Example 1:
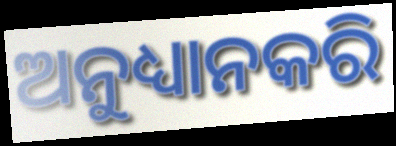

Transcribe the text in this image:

ଅନୁଧ୍ୟାନକରି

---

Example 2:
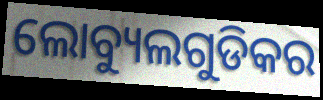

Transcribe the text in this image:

ଲୋବ୍ୟୁଲଗୁଡିକର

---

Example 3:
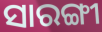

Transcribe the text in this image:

ସାରଙ୍ଗୀ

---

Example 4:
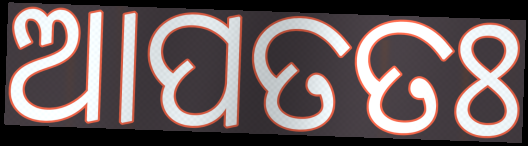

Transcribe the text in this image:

ଆପତତଃ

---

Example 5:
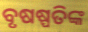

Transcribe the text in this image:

ବୃଷଷ୍ପତିଙ୍କ